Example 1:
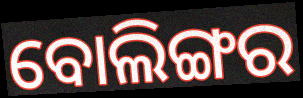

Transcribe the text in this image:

ବୋଲିଙ୍ଗର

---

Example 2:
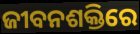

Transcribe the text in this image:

ଜୀବନଶକ୍ତିରେ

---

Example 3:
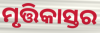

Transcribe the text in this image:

ମୃତ୍ତିକାସ୍ତର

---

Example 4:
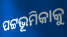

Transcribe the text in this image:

ପଟ୍ଟଭୂମିକାକୁ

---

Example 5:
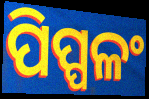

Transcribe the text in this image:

ପିପ୍ପଳଂ